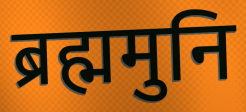
ब्रह्ममुनि